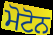
ਮੋਟੋਨ